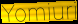
Yomiuri